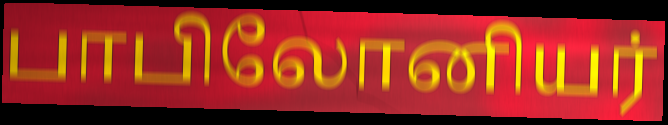
பாபிலோனியர்